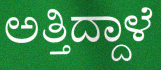
ಅತ್ತಿದ್ದಾಳೆ